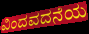
ವಿಂದವದನೆಯ